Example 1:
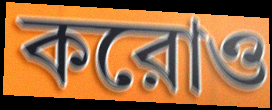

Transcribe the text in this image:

করোও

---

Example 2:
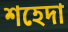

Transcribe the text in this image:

শহেদা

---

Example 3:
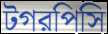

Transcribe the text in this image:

টগরপিসি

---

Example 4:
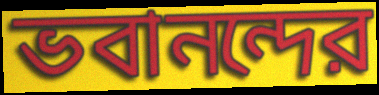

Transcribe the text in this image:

ভবানন্দের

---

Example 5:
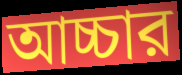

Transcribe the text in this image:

আচ্চার